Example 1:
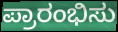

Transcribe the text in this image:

ಪ್ರಾರಂಭಿಸು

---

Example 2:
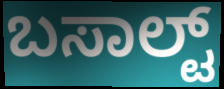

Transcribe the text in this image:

ಬಸಾಲ್ಟ್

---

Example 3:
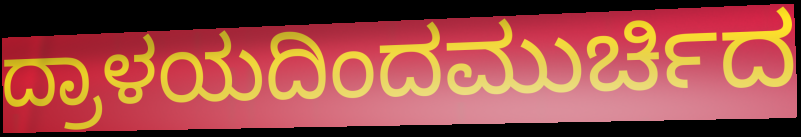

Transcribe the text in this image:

ದ್ರಾಳಯದಿಂದಮುರ್ಚಿದ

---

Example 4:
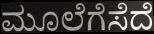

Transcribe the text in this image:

ಮೂಲೆಗೆಸೆದೆ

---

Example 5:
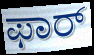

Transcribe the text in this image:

ಫಾರ್